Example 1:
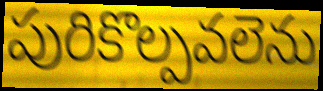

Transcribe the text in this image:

పురికొల్పవలెను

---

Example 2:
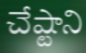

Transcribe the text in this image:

చేష్టాని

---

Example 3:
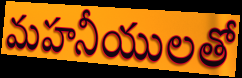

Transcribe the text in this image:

మహనీయులతో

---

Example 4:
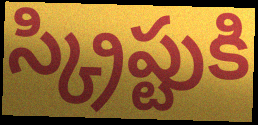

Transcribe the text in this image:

స్క్రిప్టుకి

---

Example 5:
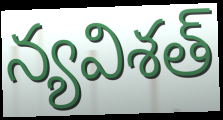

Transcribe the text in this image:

న్యవిశత్